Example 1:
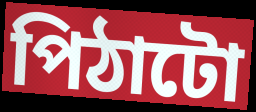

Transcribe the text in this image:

পিঠাটো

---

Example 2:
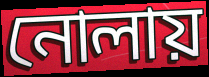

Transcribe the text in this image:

নোলায়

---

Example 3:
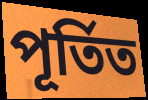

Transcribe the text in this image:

পূৰ্তিত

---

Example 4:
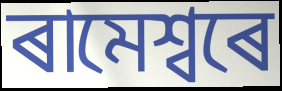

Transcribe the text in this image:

ৰামেশ্বৰে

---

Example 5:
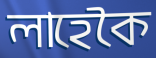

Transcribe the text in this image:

লাহেকৈ